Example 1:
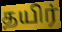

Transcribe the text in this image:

தயிர்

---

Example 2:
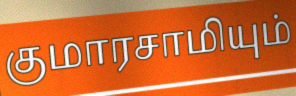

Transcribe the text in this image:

குமாரசாமியும்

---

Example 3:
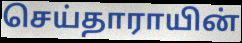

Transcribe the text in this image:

செய்தாராயின்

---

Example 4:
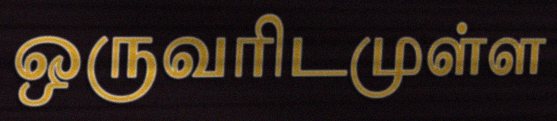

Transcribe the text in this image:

ஒருவரிடமுள்ள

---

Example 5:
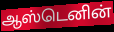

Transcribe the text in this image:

ஆஸ்டெனின்